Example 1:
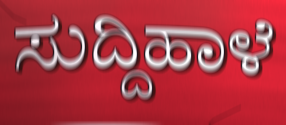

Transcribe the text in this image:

ಸುದ್ದಿಹಾಳೆ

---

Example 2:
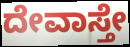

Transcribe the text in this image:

ದೇವಾಸ್ತೇ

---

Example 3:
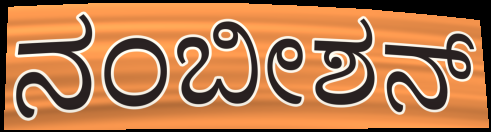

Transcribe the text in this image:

ನಂಬೀಶನ್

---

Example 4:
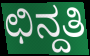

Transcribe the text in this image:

ಛಿನ್ದತಿ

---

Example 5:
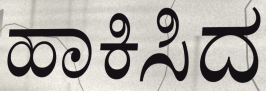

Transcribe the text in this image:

ಹಾಕಿಸಿದ